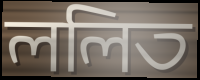
ললিত